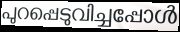
പുറപ്പെടുവിച്ചപ്പോൾ